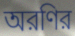
অরণির